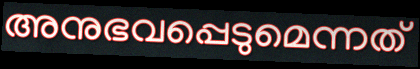
അനുഭവപ്പെടുമെന്നത്